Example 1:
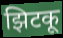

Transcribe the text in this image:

झिटकू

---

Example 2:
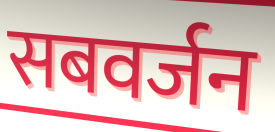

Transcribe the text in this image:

सबवर्जन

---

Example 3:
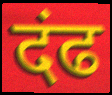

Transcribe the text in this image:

दंढ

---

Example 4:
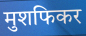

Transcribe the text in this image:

मुशफिकर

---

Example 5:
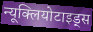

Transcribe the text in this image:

न्यूक्लियोटाइड्स